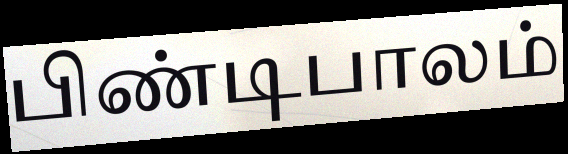
பிண்டிபாலம்